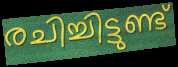
രചിച്ചിട്ടുണ്ട്